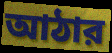
আঠার